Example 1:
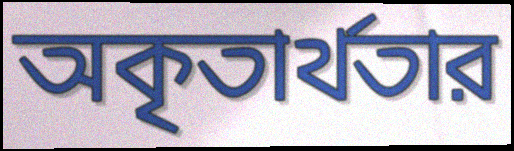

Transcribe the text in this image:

অকৃতার্থতার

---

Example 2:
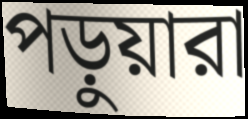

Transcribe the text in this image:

পড়ুয়ারা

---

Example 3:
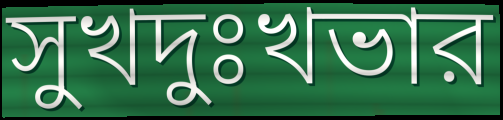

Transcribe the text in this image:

সুখদুঃখভার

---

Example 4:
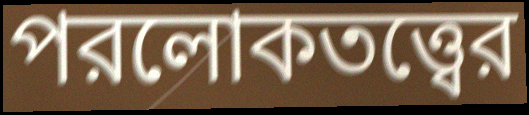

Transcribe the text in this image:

পরলোকতত্ত্বের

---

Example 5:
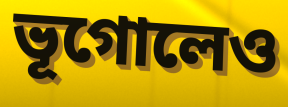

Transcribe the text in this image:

ভূগোলেও